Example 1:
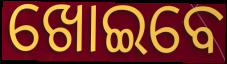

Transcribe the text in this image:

ଖୋଇବେ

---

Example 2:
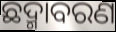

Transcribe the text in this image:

ଛଦ୍ମାବରଣ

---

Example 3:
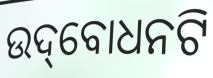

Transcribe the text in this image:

ଉଦ୍‌ବୋଧନଟି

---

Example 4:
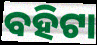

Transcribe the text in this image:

ବହିଟା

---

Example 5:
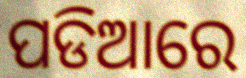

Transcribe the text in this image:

ପଡିଆରେ